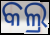
କଲ୍ର